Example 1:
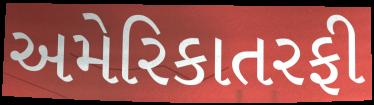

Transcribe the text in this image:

અમેરિકાતરફી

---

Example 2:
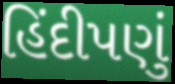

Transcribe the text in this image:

હિંદીપણું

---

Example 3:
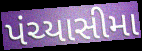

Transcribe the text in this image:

પંચ્યાસીમા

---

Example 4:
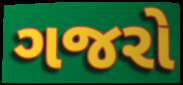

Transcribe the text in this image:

ગજરો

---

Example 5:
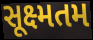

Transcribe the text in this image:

સૂક્ષ્મતમ